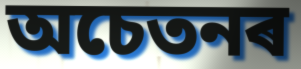
অচেতনৰ